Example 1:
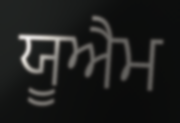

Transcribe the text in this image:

ਯੂਐਮ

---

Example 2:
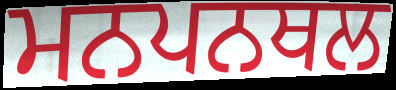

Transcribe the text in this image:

ਮਨਪਨਥਲ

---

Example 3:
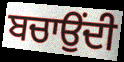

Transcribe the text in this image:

ਬਚਾਉਂਦੀ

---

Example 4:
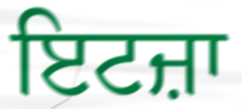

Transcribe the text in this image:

ਇਟਜ਼ਾ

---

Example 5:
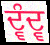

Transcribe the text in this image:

ਦ੍ਵੰਦ੍ਵ